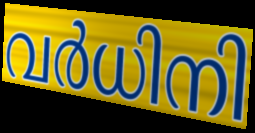
വർധിനി